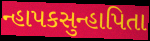
ન્હાપકસુન્હાપિતા